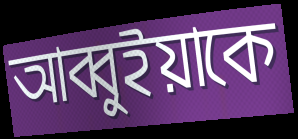
আব্বুইয়াকে